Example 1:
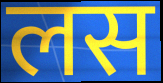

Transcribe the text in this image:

लस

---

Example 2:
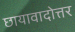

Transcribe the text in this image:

छायावादोत्तर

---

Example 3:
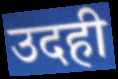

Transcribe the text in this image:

उदही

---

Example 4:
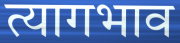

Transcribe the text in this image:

त्यागभाव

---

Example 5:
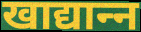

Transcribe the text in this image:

खाद्यान्‍न